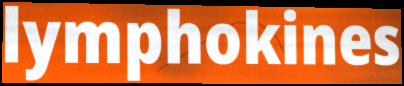
lymphokines